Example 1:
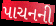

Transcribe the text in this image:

પાચનની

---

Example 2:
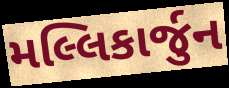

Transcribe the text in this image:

મલ્લિકાર્જુન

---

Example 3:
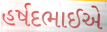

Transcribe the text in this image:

હર્ષદભાઈએ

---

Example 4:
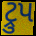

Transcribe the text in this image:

ટ્રુપ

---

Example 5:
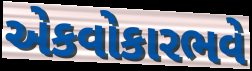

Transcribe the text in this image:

એકવોકારભવે